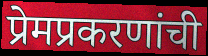
प्रेमप्रकरणांची